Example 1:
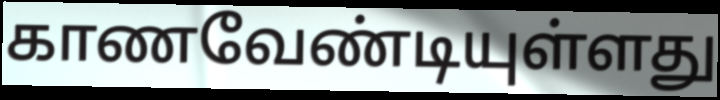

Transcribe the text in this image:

காணவேண்டியுள்ளது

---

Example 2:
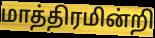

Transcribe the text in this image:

மாத்திரமின்றி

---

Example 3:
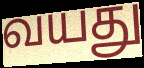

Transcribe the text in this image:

வயது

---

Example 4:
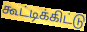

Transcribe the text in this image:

கூட்டிக்கிட்டு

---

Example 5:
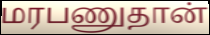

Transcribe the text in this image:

மரபணுதான்